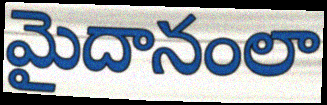
మైదానంలా